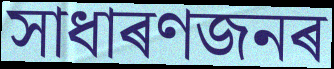
সাধাৰণজনৰ